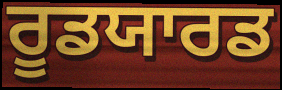
ਰੂਡਯਾਰਡ